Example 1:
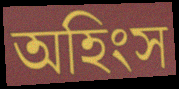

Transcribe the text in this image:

অহিংস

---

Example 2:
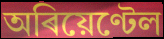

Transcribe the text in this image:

অৰিয়েণ্টেল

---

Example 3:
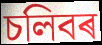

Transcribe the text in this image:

চলিবৰ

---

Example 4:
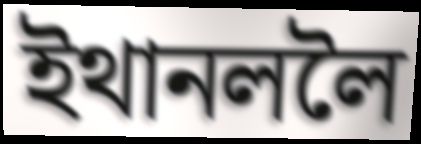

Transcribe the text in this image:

ইথানললৈ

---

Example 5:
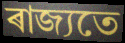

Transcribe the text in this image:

ৰাজ্যতে